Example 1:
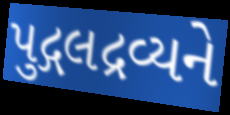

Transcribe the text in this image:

પુદ્ગલદ્રવ્યને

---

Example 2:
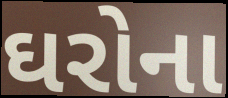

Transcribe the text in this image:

ઘરોના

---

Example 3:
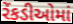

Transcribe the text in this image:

રેંકડીઓમાં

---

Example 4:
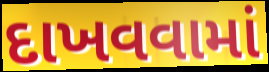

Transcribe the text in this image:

દાખવવામાં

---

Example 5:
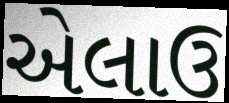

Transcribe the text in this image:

એલાઉ